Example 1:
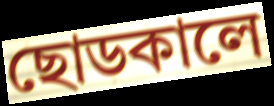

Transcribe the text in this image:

ছোডকালে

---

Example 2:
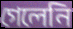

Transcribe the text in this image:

গেলেনি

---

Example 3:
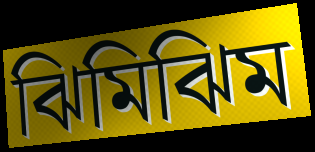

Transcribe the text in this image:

ঝিমিঝিম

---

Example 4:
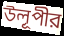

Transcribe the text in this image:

উলূপীর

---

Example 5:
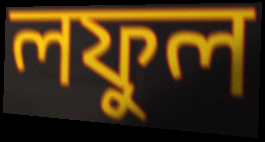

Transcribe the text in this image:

লফুল